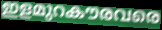
ഇളമുറകൗരവരെ